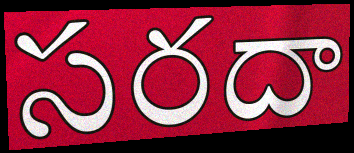
సరదా